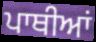
ਪਾਥੀਆਂ